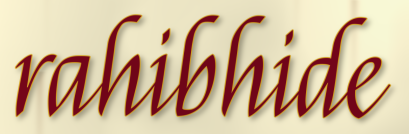
rahibhide